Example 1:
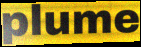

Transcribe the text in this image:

plume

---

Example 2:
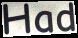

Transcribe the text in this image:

Had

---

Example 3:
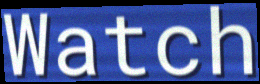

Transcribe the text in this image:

Watch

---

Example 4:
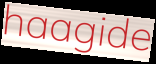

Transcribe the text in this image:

haagide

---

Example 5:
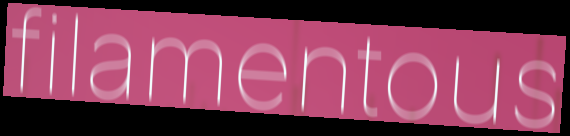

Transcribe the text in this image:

filamentous